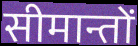
सीमान्तों